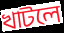
খাটলে